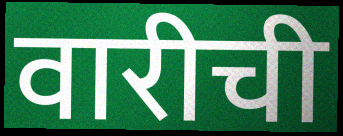
वारीची